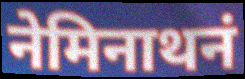
नेमिनाथनं